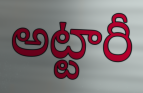
అట్టారీ